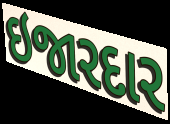
ઇજારદાર